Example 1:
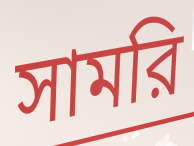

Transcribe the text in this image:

সামরি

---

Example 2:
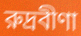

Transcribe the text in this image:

রুদ্রবীণা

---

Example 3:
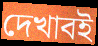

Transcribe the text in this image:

দেখাবই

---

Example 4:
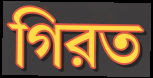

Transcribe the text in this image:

গিরত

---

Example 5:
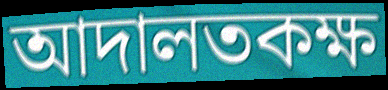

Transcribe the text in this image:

আদালতকক্ষ